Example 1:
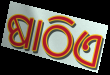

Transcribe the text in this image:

ଷାଠିଏ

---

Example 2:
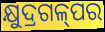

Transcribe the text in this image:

କ୍ଷୁଦ୍ରଗଳ୍‌ପର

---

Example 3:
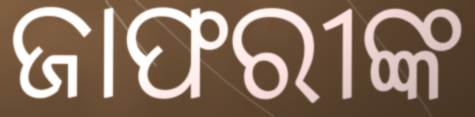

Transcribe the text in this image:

ଜାଫରୀଙ୍କ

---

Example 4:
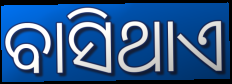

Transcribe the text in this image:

ବାସିଥାଏ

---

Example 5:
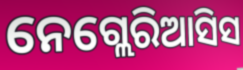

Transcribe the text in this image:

ନେଗ୍ଲେରିଆସିସ